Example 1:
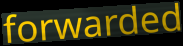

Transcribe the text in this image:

forwarded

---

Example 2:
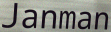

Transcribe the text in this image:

Janman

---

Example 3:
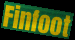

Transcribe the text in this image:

Finfoot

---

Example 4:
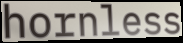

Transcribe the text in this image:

hornless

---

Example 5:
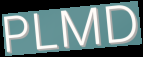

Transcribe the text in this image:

PLMD